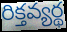
రిక్తవ్యర్థ